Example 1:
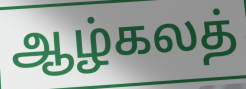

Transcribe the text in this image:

ஆழ்கலத்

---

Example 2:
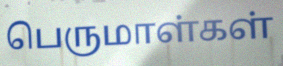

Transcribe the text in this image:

பெருமாள்கள்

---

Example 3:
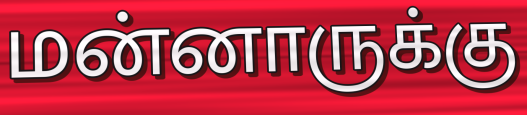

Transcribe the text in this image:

மன்னாருக்கு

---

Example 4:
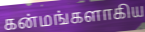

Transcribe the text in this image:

கன்மங்களாகிய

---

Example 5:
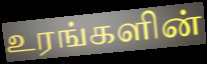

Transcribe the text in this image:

உரங்களின்